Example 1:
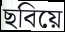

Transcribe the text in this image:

ছবিয়ে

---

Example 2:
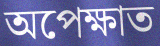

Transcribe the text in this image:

অপেক্ষাত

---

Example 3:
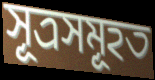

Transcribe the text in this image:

সূত্ৰসমূহত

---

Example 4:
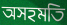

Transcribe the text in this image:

অসহমতি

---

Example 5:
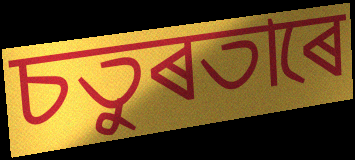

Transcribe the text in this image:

চতুৰতাৰে